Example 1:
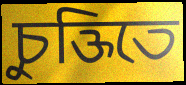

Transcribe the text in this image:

চুক্তিতে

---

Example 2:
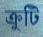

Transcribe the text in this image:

ক্ৰুটি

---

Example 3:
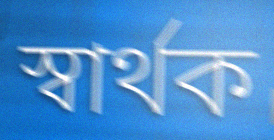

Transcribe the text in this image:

স্বাৰ্থক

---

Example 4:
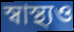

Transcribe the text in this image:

স্বাস্থ্যও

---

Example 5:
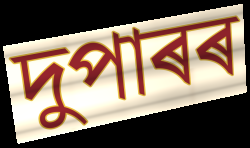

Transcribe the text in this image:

দুপাৰৰ